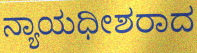
ನ್ಯಾಯಧೀಶರಾದ